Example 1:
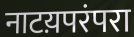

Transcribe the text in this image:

नाटय़परंपरा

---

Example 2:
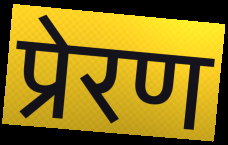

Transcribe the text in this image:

प्रेरण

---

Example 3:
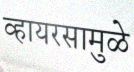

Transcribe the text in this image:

व्हायरसामुळे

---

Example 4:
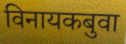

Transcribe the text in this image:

विनायकबुवा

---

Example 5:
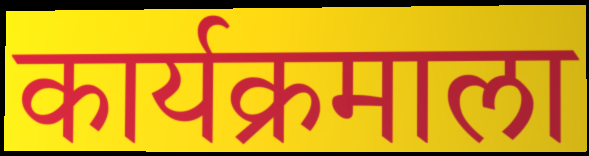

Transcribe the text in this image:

कार्यक्रमाला